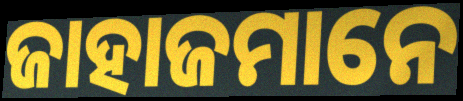
ଜାହାଜମାନେ